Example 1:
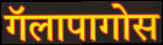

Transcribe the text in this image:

गॅलापागोस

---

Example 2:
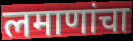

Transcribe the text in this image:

लमाणांचा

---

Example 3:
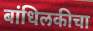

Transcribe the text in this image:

बांधिलकीचा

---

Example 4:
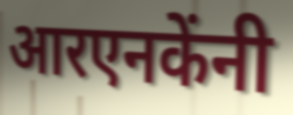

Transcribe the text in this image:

आरएनकेंनी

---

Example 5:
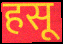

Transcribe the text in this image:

हसू